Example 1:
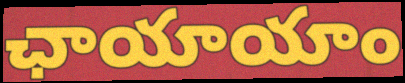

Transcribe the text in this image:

ఛాయాయాం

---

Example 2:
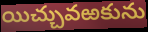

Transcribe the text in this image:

యిచ్చువఱకును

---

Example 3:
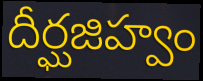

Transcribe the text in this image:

దీర్ఘజిహ్వం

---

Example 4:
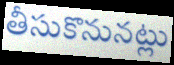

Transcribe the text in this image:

తీసుకొనునట్లు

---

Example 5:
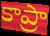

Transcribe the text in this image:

కాప్రా